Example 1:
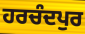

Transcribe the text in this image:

ਹਰਚੰਦਪੁਰ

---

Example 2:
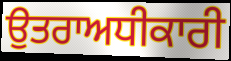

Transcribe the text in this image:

ਉਤਰਾਅਧੀਕਾਰੀ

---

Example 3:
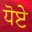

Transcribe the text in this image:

ਧੋਏ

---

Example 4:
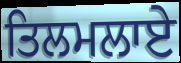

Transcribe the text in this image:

ਤਿਲਮਲਾਏ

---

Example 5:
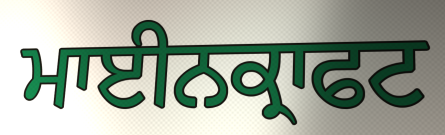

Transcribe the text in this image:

ਮਾਈਨਕ੍ਰਾਫਟ